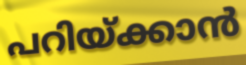
പറിയ്ക്കാൻ